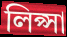
লিপ্সা